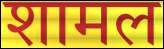
शामल